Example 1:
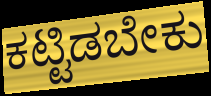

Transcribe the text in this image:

ಕಟ್ಟಿಡಬೇಕು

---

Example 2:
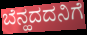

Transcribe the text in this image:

ಬೆನ್ಹದದನಿಗೆ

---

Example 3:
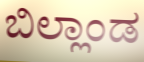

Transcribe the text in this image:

ಬಿಲ್ಲಾಂಡ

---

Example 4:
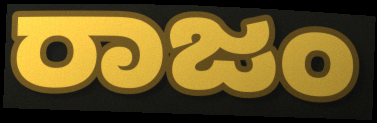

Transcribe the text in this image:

ರಾಜಂ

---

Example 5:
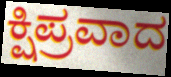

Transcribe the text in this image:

ಕ್ಷಿಪ್ರವಾದ